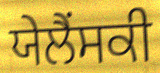
ਯੇਲੈਂਸਕੀ